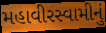
મહાવીરસ્વામીનું